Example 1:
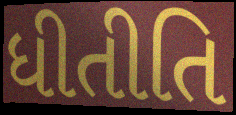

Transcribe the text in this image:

ધીતીતિ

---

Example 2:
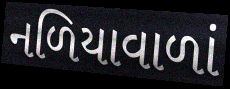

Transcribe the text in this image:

નળિયાવાળાં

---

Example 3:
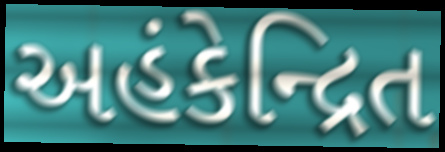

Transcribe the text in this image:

અહંકેન્દ્રિત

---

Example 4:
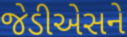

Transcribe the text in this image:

જેડીએસને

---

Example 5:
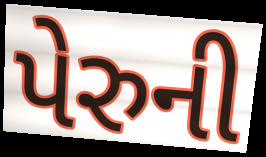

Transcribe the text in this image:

પેરુની